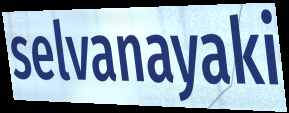
selvanayaki